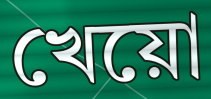
খেয়ো